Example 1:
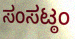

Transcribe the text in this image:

ಸಂಸಟ್ಠಂ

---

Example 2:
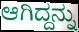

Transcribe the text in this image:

ಆಗಿದ್ದನ್ನು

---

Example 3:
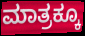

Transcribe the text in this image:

ಮಾತ್ರಕ್ಕೂ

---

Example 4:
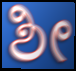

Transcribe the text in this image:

ಶೀ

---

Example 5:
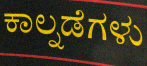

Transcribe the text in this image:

ಕಾಲ್ನಡೆಗಳು